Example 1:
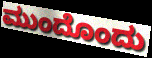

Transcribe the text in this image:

ಮುಂದೊಂದು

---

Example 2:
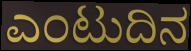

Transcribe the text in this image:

ಎಂಟುದಿನ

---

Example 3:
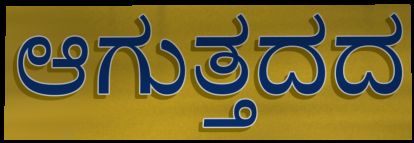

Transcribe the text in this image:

ಆಗುತ್ತದದ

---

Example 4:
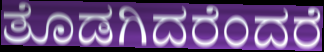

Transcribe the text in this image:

ತೊಡಗಿದರೆಂದರೆ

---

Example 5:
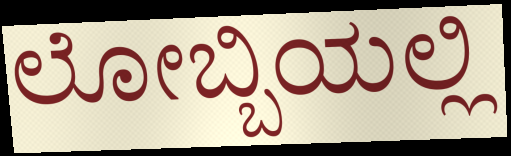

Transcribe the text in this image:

ಲೋಬ್ಬಿಯಲ್ಲಿ